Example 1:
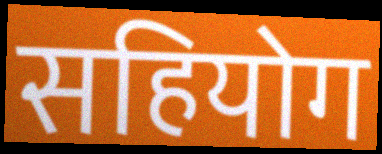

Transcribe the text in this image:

सहियोग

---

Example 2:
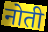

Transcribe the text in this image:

नोती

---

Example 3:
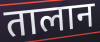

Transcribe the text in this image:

तालान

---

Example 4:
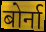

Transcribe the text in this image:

बोर्ना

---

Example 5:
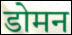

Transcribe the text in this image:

डोमन